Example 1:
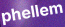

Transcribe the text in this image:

phellem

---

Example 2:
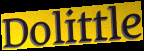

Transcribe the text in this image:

Dolittle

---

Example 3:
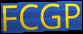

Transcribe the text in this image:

FCGP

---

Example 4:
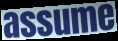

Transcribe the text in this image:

assume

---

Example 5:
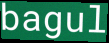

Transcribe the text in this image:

bagul